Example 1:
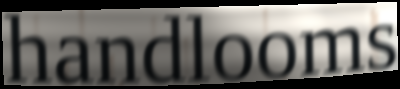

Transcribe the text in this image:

handlooms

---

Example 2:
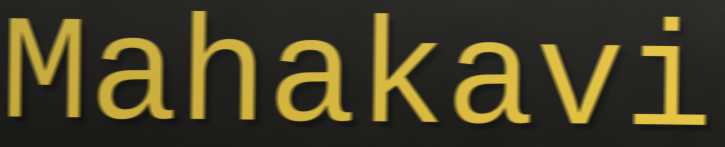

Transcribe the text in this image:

Mahakavi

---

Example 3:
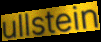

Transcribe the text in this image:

ullstein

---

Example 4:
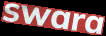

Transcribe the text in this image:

swara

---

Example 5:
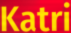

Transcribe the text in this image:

Katri